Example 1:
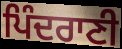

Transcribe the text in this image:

ਪਿੰਦਰਾਣੀ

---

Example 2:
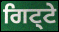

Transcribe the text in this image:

ਗਿਟ੍ਟੇ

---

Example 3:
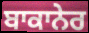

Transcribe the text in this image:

ਬਾਕਾਨੇਰ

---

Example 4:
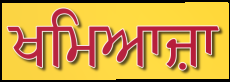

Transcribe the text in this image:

ਖਮਿਆਜ਼ਾ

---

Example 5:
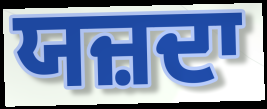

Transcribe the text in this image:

ਯਜ਼ਦਾ